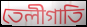
তেলীগাতি